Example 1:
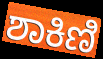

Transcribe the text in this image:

ಶಾಕಿಣಿ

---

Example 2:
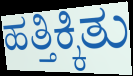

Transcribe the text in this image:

ಹತ್ತಿಕ್ಕಿತು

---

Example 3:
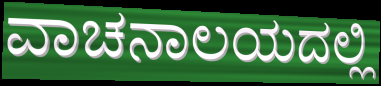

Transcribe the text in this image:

ವಾಚನಾಲಯದಲ್ಲಿ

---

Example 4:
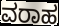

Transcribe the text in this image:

ವರಾಹ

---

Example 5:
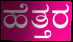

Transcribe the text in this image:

ಹೆತ್ತರ